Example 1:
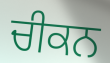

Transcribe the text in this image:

ਚੀਕਨ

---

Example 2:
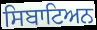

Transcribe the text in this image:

ਸਿਬਾਟਿਅਨ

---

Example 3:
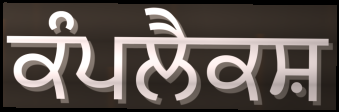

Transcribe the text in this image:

ਕੰਪਲੈਕਸ਼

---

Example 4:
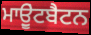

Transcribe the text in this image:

ਮਾਉੂਂਟਬੈਟਨ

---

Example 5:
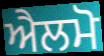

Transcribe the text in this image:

ਐਲਮੋ